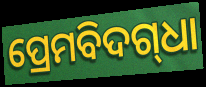
ପ୍ରେମବିଦଗ୍‍ଧା